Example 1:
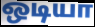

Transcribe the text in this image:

ஒடியா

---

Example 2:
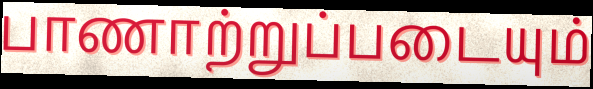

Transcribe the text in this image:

பாணாற்றுப்படையும்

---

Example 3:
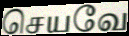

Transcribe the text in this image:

செயவே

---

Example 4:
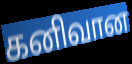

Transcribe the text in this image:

கனிவான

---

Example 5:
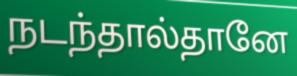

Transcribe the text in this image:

நடந்தால்தானே